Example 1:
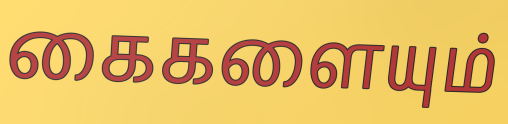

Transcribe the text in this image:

கைகளையும்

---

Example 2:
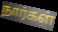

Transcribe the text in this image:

நார்கள்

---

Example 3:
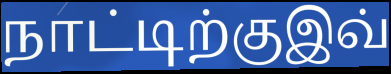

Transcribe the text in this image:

நாட்டிற்குஇவ்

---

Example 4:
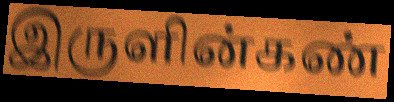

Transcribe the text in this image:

இருளின்கண்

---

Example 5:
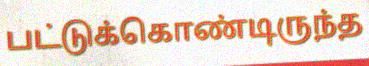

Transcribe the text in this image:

பட்டுக்கொண்டிருந்த